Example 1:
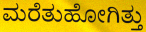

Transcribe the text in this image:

ಮರೆತುಹೋಗಿತ್ತು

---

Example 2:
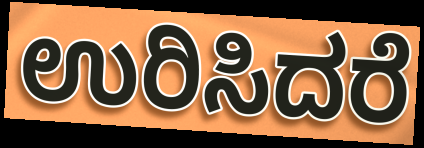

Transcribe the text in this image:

ಉರಿಸಿದರೆ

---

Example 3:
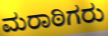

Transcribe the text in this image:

ಮರಾಠಿಗರು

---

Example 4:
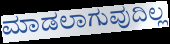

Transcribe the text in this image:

ಮಾಡಲಾಗುವುದಿಲ್ಲ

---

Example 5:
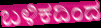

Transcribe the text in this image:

ಬಳಿಕದಿಂದ